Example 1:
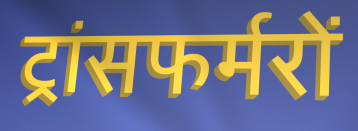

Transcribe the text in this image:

ट्रांसफर्मरों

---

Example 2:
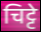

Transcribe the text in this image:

चिट्टे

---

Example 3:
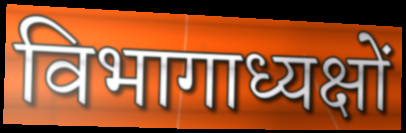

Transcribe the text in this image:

विभागाध्यक्षों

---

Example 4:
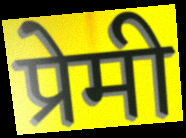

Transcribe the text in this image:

प्रेमी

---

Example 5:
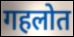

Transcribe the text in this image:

गहलोत